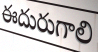
ఈదురుగాలి